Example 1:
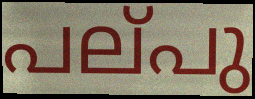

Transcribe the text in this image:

പല്‌പു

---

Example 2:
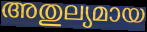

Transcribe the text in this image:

അതുല്യമായ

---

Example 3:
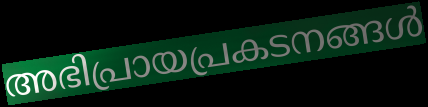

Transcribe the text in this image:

അഭിപ്രായപ്രകടനങ്ങൾ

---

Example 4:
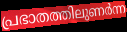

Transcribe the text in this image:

പ്രഭാതത്തിലുണർന്ന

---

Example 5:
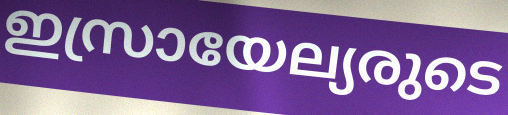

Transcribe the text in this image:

ഇസ്രായേല്യരുടെ